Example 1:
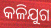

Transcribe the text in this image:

କଳିଯୁଗ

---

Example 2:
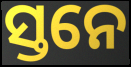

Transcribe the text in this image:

ସ୍ତନେ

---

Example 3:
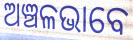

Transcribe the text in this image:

ଅଞ୍ଚଳଭାବେ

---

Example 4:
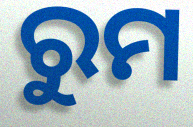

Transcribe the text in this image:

ରୁମ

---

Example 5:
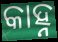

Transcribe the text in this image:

କାହ୍ନ